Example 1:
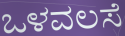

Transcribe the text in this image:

ಒಳವಲಸೆ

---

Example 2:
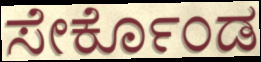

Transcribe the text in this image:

ಸೇರ್ಕೊಂಡ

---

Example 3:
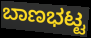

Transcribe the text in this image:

ಬಾಣಭಟ್ಟ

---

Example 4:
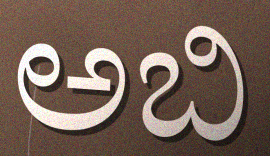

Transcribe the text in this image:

ಅಬಿ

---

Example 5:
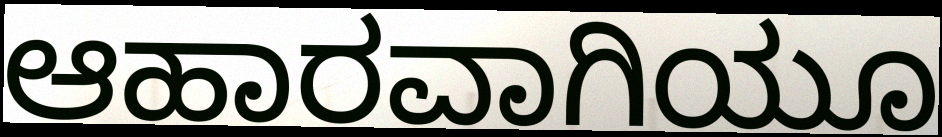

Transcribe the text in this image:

ಆಹಾರವಾಗಿಯೂ